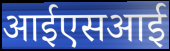
आईएसआई